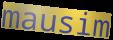
mausim